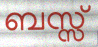
ബസ്സ്